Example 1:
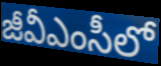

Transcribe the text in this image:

జీవీఎంసీలో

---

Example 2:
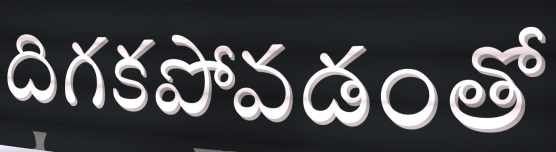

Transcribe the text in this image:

దిగకపోవడంతో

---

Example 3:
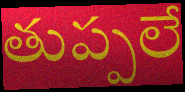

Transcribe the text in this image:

తుప్పలే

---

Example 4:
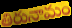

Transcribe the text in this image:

తిరునామం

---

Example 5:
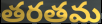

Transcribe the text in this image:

తరతమ